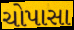
ચોપાસા